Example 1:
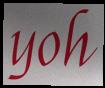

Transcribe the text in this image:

yoh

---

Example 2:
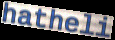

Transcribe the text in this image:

hatheli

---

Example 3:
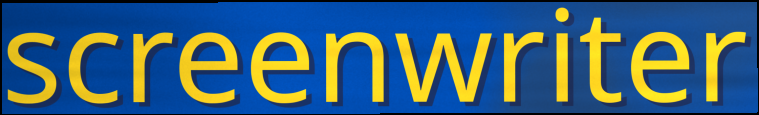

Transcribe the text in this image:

screenwriter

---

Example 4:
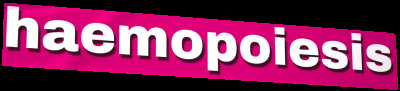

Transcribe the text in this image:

haemopoiesis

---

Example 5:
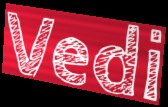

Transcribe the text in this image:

Vedi